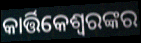
କାର୍ତ୍ତିକେଶ୍ୱରଙ୍କର